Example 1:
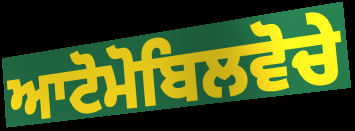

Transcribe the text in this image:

ਆਟੋਮੋਬਿਲਵੋਚੇ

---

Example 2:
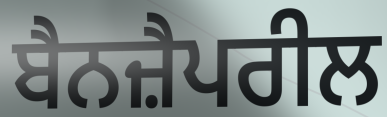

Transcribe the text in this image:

ਬੈਨਜ਼ੈਪਰੀਲ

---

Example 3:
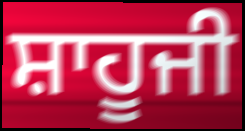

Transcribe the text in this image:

ਸ਼ਾਹੂਜੀ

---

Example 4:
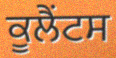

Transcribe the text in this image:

ਕੂਲੈਂਟਸ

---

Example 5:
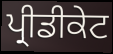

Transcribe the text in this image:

ਪ੍ਰੀਡੀਕੇਟ